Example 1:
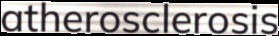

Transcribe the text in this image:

atherosclerosis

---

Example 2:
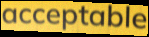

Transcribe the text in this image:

acceptable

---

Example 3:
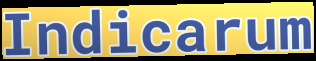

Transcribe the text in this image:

Indicarum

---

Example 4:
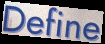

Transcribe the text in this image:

Define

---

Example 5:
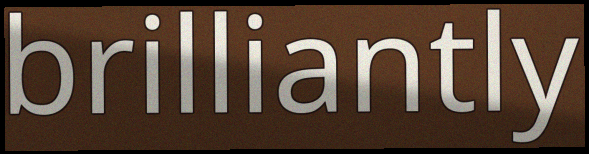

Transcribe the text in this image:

brilliantly